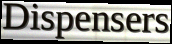
Dispensers